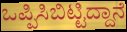
ಒಪ್ಪಿಸಿಬಿಟ್ಟಿದ್ದಾನೆ